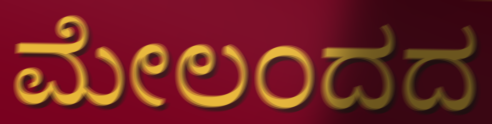
ಮೇಲಂದದ